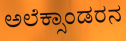
ಅಲೆಕ್ಸಾಂಡರನ